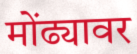
मोंढ्यावर